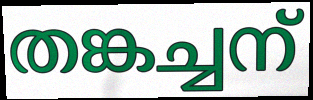
തങ്കച്ചന്